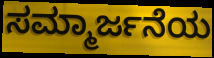
ಸಮ್ಮಾರ್ಜನೆಯ